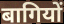
बागियों